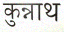
कुन्नाथ